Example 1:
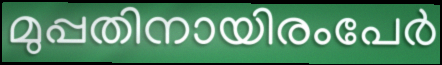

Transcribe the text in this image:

മുപ്പതിനായിരംപേർ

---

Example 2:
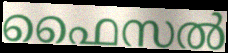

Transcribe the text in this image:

ഫൈസൽ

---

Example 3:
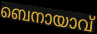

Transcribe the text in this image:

ബെനായാവ്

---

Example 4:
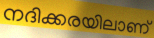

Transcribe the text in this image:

നദിക്കരയിലാണ്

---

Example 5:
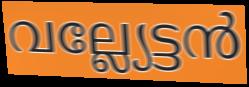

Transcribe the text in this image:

വല്ല്യേട്ടൻ